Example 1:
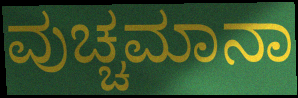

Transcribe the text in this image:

ವುಚ್ಚಮಾನಾ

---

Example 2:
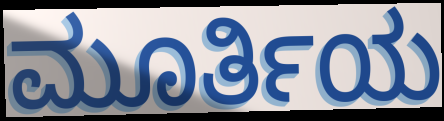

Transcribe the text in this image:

ಮೂರ್ತಿಯ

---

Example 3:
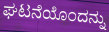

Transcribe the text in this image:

ಘಟನೆಯೊಂದನ್ನು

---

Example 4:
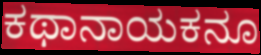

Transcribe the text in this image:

ಕಥಾನಾಯಕನೂ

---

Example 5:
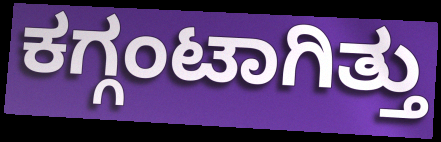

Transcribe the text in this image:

ಕಗ್ಗಂಟಾಗಿತ್ತು